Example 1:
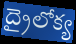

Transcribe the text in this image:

ద్రైలోక్య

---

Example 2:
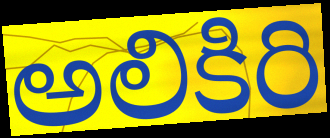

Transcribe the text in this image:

అలికిరి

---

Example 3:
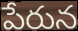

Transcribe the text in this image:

పేరున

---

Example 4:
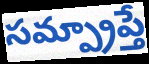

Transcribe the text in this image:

సమ్ప్రాప్తే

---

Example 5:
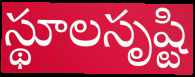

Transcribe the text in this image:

స్థూలసృష్టి